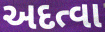
અદત્વા